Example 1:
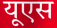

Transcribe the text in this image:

यूएस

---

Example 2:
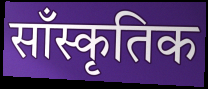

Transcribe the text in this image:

साँस्कृतिक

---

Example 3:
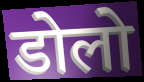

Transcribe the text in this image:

डोलो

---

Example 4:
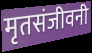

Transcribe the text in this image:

मृतसंजीवनी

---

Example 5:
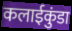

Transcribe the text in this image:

कलाईकुंडा